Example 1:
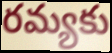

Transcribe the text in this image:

రమ్యకు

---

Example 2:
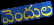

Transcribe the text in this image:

వెందుల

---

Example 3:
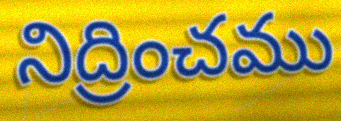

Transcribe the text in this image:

నిద్రించము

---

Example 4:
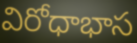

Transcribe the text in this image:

విరోధాభాస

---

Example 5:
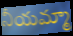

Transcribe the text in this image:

నీయమ్మా